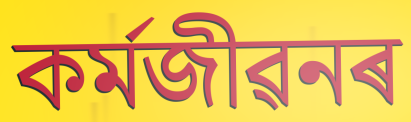
কৰ্মজীৱনৰ